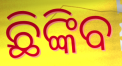
ଛିଙ୍କିବ